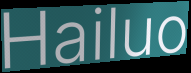
Hailuo